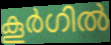
കൂർഗിൽ